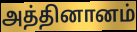
அத்தினானம்